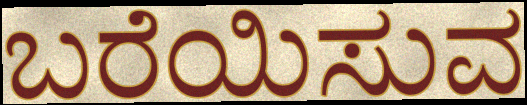
ಬರೆಯಿಸುವ